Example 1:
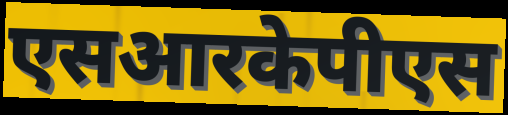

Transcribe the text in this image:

एसआरकेपीएस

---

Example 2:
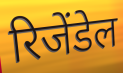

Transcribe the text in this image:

रिजेंडेल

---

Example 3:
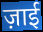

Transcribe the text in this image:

ज़ाई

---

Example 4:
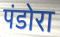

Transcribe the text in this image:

पंडोरा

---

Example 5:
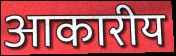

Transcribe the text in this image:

आकारीय